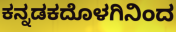
ಕನ್ನಡಕದೊಳಗಿನಿಂದ